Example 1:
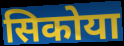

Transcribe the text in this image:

सिकोया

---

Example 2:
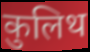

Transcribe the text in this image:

कुलिथ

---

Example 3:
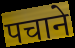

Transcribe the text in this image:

पचाने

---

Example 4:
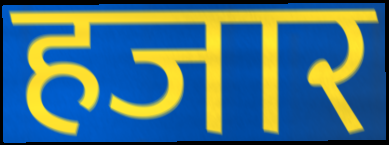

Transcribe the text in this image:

हजार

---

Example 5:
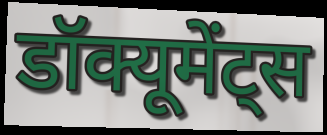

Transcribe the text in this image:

डॉक्यूमेंट्स